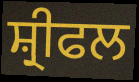
ਸ਼੍ਰੀਫਲ